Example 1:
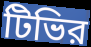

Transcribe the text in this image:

টিভির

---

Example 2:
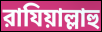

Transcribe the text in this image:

রাযিয়াল্লাহু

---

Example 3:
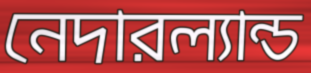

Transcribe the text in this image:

নেদারল্যান্ড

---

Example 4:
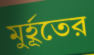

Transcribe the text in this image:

মুর্হূতের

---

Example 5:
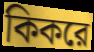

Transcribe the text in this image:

কিকরে